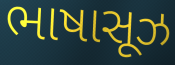
ભાષાસૂઝ